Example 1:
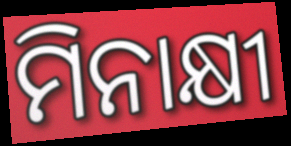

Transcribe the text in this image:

ମିନାକ୍ଷୀ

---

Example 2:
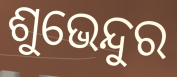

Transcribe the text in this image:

ଶୁଭେନ୍ଦୁର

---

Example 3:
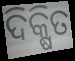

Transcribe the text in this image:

ଦିକ୍ଷିତ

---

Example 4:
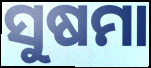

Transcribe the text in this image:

ସୁଷମା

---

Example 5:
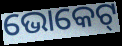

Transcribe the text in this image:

ଭୋକେଟ୍